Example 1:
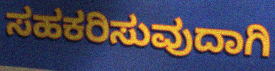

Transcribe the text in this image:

ಸಹಕರಿಸುವುದಾಗಿ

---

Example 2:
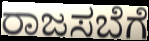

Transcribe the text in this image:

ರಾಜಸಬೆಗೆ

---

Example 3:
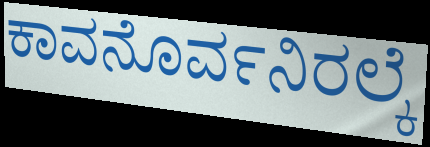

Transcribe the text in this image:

ಕಾವನೊರ್ವನಿರಲ್ಕೆ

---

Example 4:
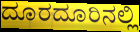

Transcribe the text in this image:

ದೂರದೂರಿನಲ್ಲಿ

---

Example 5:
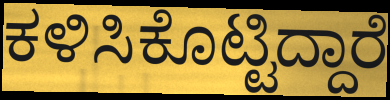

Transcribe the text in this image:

ಕಳಿಸಿಕೊಟ್ಟಿದ್ದಾರೆ